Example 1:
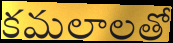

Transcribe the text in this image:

కమలాలతో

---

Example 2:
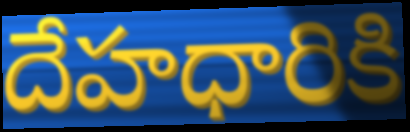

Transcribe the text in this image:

దేహధారికి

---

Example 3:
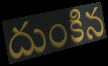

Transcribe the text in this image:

దుంకిన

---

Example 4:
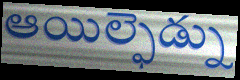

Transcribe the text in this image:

ఆయిల్ఫెడ్ను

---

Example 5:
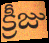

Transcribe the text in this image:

క్రీజు